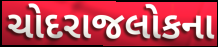
ચોદરાજલોકના